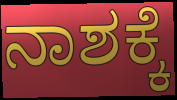
ನಾಶಕ್ಕೆ